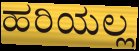
ಹರಿಯಲ್ಲ